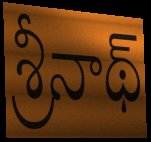
శ్రీనాథ్